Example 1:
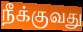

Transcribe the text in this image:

நீக்குவது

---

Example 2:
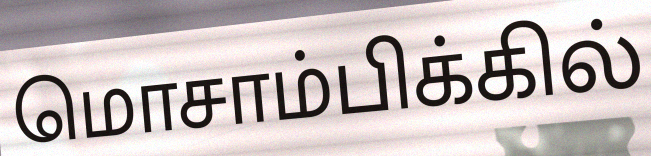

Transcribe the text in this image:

மொசாம்பிக்கில்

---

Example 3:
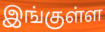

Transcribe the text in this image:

இங்குள்ள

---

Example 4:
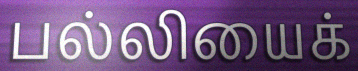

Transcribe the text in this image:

பல்லியைக்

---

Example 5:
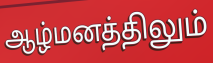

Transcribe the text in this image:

ஆழ்மனத்திலும்